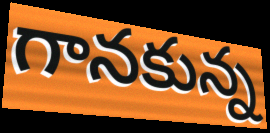
గానకున్న